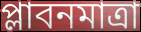
প্লাবনমাত্রা